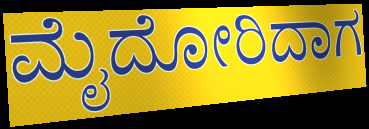
ಮೈದೋರಿದಾಗ